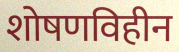
शोषणविहीन